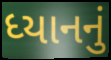
ધ્યાનનું